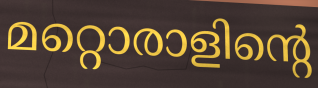
മറ്റൊരാളിന്റെ